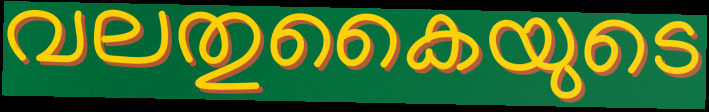
വലതുകൈയുടെ